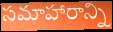
సమాహారాన్ని